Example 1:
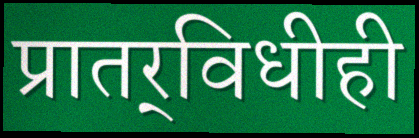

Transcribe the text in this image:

प्रातर्विधीही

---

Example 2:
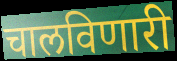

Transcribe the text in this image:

चालविणारी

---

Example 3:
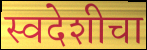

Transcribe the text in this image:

स्वदेशीचा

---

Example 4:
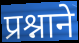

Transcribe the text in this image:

प्रश्नाने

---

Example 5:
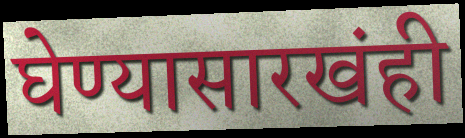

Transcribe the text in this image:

घेण्यासारखंही